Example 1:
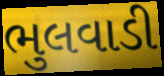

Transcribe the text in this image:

ભુલવાડી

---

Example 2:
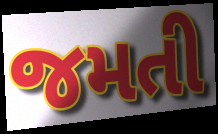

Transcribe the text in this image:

જમતી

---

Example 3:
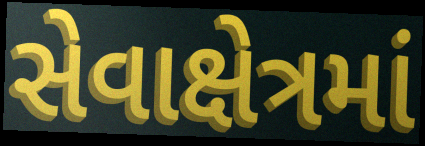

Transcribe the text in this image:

સેવાક્ષેત્રમાં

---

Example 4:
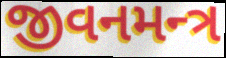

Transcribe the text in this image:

જીવનમન્ત્ર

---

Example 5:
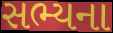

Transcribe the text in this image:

સભ્યના